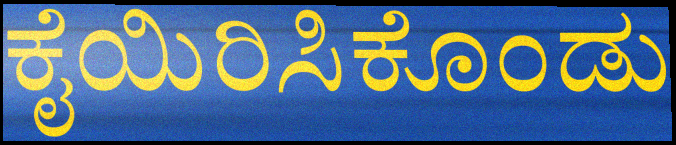
ಕೈಯಿರಿಸಿಕೊಂಡು